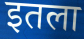
इतला